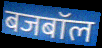
बजबॉल